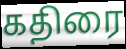
கதிரை